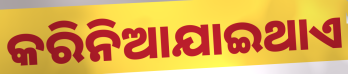
କରିନିଆଯାଇଥାଏ